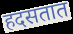
हदसतात